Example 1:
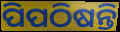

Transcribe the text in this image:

ପିପଠିଷନ୍ତି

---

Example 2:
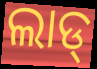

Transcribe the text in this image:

ଲାଡ୍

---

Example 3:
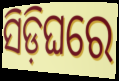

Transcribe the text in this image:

ସିଡ଼ିଘରେ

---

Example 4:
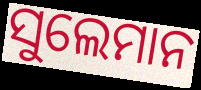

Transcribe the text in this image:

ସୁଲେମାନ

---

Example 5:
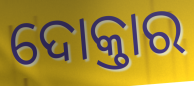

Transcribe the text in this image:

ଦୋକ୍ତାର